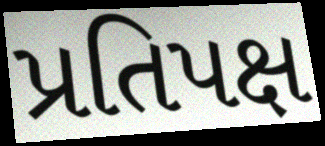
પ્રતિપક્ષ